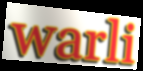
warli